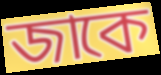
জাকে